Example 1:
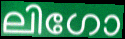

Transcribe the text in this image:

ലിഗോ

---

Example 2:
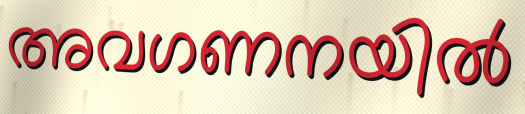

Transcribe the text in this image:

അവഗണനയിൽ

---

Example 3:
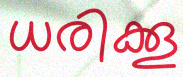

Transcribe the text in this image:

ധരിക്കൂ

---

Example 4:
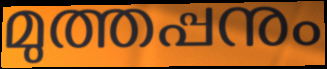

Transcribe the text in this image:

മുത്തപ്പനും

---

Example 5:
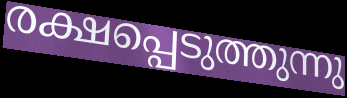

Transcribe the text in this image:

രക്ഷപ്പെടുത്തുന്നു